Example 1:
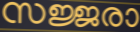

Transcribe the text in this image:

സജ്ജരാ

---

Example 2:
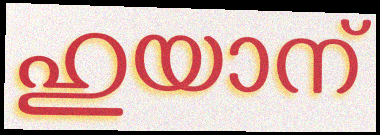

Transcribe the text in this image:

ഹുയാന്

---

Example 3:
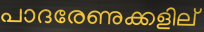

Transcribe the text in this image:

പാദരേണുക്കളില്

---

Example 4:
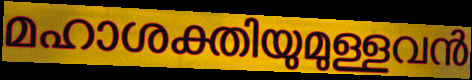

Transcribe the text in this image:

മഹാശക്തിയുമുള്ളവൻ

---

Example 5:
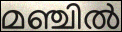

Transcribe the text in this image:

മഞ്ചിൽ